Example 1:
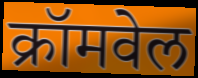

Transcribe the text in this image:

क्रॉमवेल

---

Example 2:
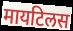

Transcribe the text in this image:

मायटिलस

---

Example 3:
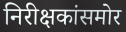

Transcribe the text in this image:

निरीक्षकांसमोर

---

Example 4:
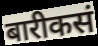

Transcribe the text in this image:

बारीकसं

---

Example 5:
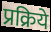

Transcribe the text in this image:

प्रक्रिये